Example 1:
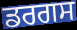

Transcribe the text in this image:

ਡਰਗਸ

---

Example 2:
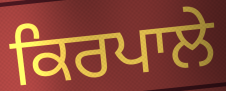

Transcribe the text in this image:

ਕਿਰਪਾਲੇ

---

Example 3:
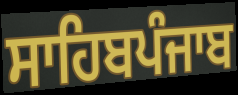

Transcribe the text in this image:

ਸਾਹਿਬਪੰਜਾਬ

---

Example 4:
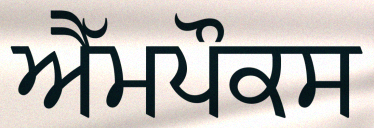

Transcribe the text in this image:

ਐੱਮਪੌਕਸ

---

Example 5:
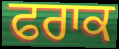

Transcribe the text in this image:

ਫਰਾਕ